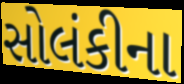
સોલંકીના